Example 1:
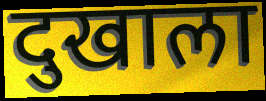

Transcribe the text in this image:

दुखाला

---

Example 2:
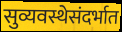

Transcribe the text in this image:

सुव्यवस्थेसंदर्भात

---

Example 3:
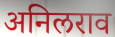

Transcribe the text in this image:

अनिलराव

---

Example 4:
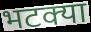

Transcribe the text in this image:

भटक्या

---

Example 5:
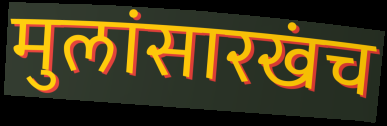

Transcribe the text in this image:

मुलांसारखंच